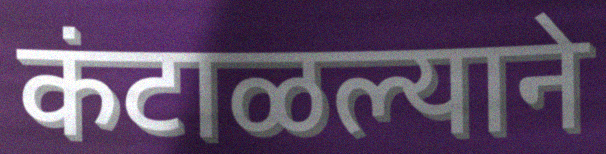
कंटाळल्याने